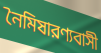
নৈমিষারণ্যবাসী